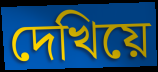
দেখিয়ে